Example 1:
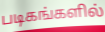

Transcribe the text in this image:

படிகங்களில்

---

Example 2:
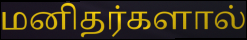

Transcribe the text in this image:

மனிதர்களால்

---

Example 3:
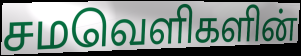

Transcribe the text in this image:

சமவெளிகளின்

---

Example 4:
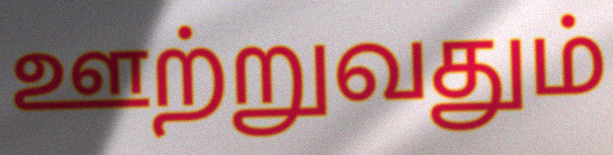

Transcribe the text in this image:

ஊற்றுவதும்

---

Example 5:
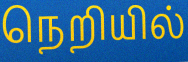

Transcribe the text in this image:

நெறியில்